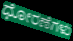
ಧೋರಣೆಗಳು